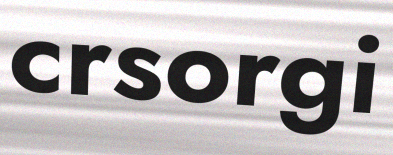
crsorgi